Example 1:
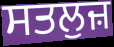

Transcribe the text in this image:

ਸਤਲੁਜ਼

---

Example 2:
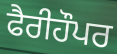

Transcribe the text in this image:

ਫੈਰੀਹੌਪਰ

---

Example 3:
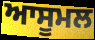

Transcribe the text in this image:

ਆਸੂਮਲ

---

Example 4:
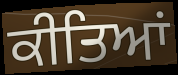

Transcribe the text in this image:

ਕੀਤਿਆਂ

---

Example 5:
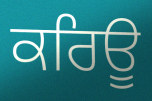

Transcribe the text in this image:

ਕਰਿਊ